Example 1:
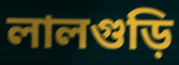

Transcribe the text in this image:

লালগুড়ি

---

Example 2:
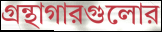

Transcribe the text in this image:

গ্রন্থাগারগুলোর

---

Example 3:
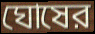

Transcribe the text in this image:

ঘোষের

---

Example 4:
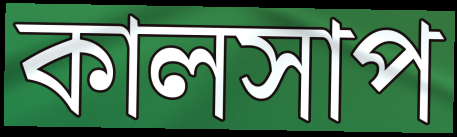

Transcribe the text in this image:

কালসাপ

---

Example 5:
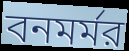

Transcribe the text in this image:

বনমর্মর